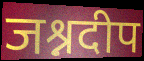
जश्नदीप